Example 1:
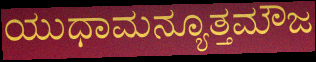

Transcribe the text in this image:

ಯುಧಾಮನ್ಯೂತ್ತಮೌಜ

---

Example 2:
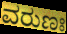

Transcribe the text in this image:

ವರುಣಃ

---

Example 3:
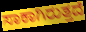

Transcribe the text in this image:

ಸಾಕಾಗಿರುತ್ತದೆ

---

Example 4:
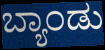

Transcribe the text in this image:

ಬ್ಯಾಂಡು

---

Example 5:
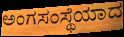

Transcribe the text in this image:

ಅಂಗಸಂಸ್ಥೆಯಾದ